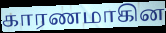
காரணமாகின